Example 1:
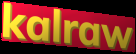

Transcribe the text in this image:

kalraw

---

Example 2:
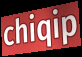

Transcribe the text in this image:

chiqip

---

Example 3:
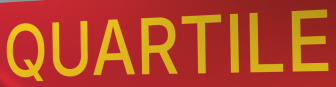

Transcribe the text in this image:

QUARTILE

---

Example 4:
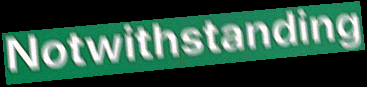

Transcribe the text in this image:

Notwithstanding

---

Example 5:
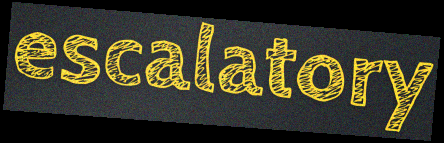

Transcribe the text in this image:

escalatory